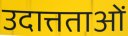
उदात्तताओं